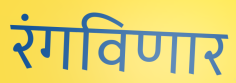
रंगविणार